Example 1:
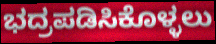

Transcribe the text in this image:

ಭದ್ರಪಡಿಸಿಕೊಳ್ಳಲು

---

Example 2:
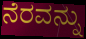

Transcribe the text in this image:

ನೆರವನ್ನು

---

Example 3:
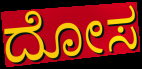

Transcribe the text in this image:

ದೋಸ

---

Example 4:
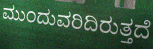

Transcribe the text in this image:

ಮುಂದುವರಿದಿರುತ್ತದೆ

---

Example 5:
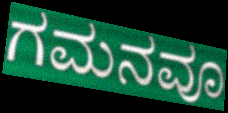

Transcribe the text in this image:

ಗಮನವೂ